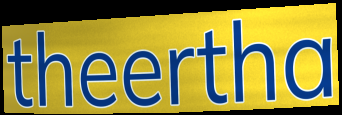
theertha